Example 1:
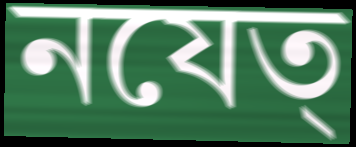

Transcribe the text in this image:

নযেত্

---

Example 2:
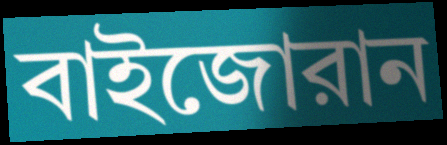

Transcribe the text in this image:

বাইজোরান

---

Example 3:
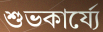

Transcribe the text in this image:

শুভকার্য্যে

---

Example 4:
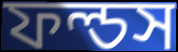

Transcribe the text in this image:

ফল্ডস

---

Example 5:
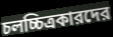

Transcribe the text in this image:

চলচ্চিত্রকারদের